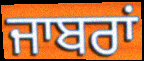
ਜਾਬਰਾਂ